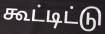
கூட்டிட்டு